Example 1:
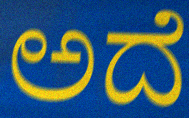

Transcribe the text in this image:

ಅದೆ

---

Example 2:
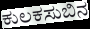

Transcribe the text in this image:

ಕುಲಕಸುಬಿನ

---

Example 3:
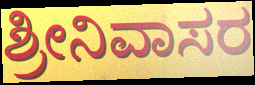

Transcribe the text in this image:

ಶ್ರೀನಿವಾಸರ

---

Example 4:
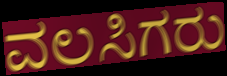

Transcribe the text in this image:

ವಲಸಿಗರು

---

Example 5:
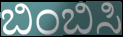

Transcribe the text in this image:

ಬಿಂಬಿಸಿ